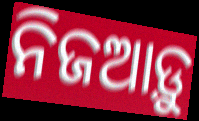
ନିଜଆଡ଼ୁ